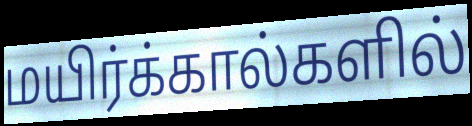
மயிர்க்கால்களில்